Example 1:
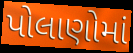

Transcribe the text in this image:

પોલાણોમાં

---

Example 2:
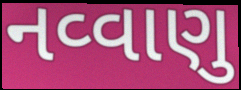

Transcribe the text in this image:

નવ્વાણુ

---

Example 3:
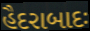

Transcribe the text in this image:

હૈદરાબાદઃ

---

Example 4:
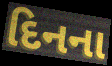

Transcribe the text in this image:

દિનના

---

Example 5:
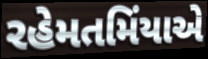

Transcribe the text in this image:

રહેમતમિંયાએ